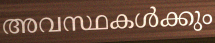
അവസ്ഥകൾക്കും